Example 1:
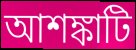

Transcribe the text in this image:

আশঙ্কাটি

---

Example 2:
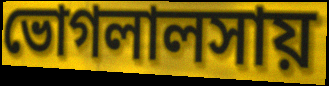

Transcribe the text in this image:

ভোগলালসায়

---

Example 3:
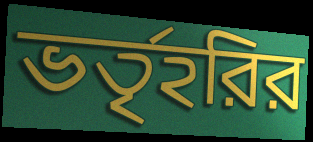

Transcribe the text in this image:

ভর্তৃহরির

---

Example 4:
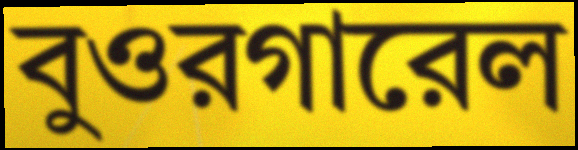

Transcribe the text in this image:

বুওরগারেল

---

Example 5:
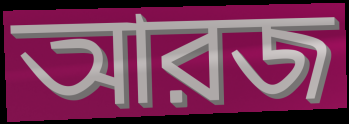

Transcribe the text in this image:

আরজ